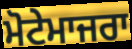
ਮੋਟੇਮਾਜਰਾ